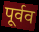
पूर्वव